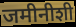
जमीनीशी